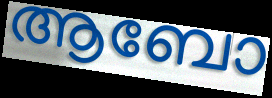
ആബോ